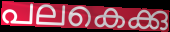
പലകെക്കു